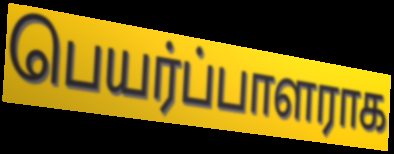
பெயர்ப்பாளராக